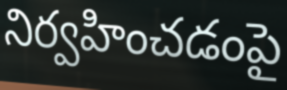
నిర్వహించడంపై